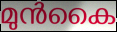
മുൻകൈ